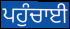
ਪਹੁੰਚਾਈ